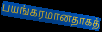
பயங்கரமானதாகத்